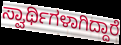
ಸ್ವಾರ್ಥಿಗಳಾಗಿದ್ದಾರೆ